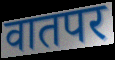
वातपर